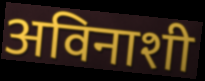
अविनाशी